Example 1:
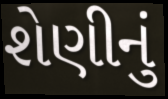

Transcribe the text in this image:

શેણીનું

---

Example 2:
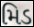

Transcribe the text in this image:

મિડ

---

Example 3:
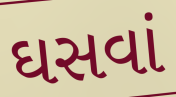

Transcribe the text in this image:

ઘસવાં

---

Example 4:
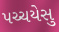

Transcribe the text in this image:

પચ્ચયેસુ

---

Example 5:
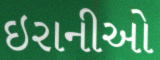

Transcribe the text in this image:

ઇરાનીઓ